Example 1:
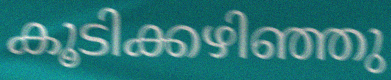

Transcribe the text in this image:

കൂടിക്കഴിഞ്ഞു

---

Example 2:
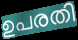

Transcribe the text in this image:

ഉപരതി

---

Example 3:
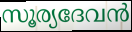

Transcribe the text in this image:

സൂര്യദേവൻ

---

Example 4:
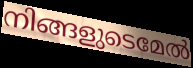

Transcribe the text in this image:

നിങ്ങളുടെമേൽ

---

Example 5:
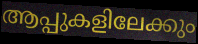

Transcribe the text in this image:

ആപ്പുകളിലേക്കും